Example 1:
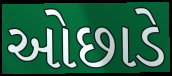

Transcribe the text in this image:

ઓછાડે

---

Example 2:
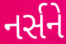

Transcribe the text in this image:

નર્સને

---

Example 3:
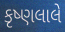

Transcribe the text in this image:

કૃષ્ણલાલે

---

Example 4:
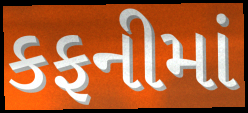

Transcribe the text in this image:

કફનીમાં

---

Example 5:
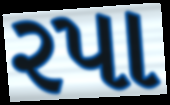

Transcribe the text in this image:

રપા